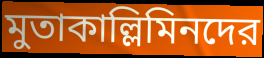
মুতাকাল্লিমিনদের